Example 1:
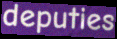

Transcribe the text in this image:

deputies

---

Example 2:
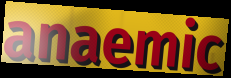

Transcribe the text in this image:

anaemic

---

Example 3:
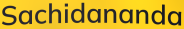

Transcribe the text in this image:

Sachidananda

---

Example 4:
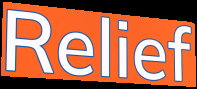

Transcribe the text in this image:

Relief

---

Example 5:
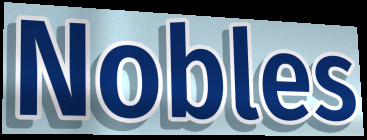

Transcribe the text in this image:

Nobles